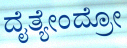
ದೈತ್ಯೇಂದ್ರೋ